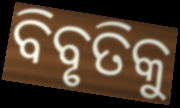
ବିବୃତିକୁ